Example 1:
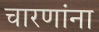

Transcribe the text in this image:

चारणांना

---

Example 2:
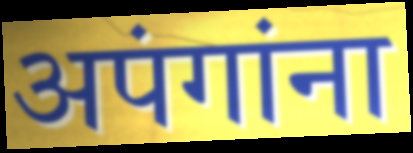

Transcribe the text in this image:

अपंगांना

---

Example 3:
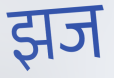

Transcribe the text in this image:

झज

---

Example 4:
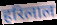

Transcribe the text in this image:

हरिलाल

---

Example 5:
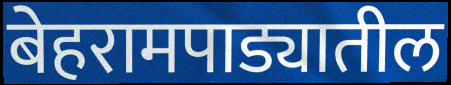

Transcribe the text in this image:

बेहरामपाड्यातील